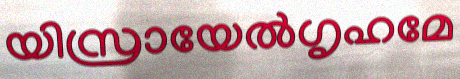
യിസ്രായേൽഗൃഹമേ